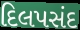
દિલપસંદ